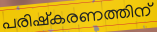
പരിഷ്കരണത്തിന്